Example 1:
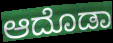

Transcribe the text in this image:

ಆದೊಡಾ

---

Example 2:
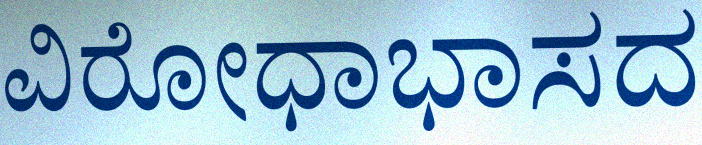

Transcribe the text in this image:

ವಿರೋಧಾಭಾಸದ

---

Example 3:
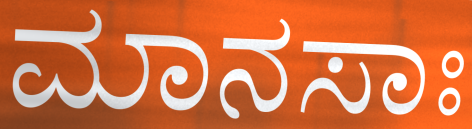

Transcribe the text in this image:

ಮಾನಸಾಃ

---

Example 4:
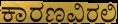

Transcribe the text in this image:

ಕಾರಣವಿರಲಿ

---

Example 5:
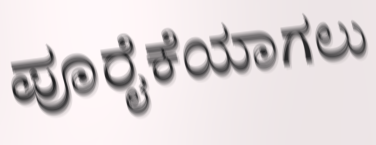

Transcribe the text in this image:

ಪೂರೈಕೆಯಾಗಲು